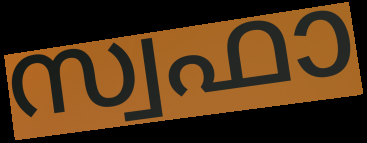
സ്വഫാ